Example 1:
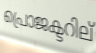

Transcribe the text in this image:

പ്രൊജക്ടറില്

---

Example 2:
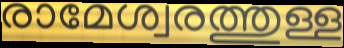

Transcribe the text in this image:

രാമേശ്വരത്തുള്ള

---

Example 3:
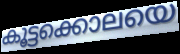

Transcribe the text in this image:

കൂട്ടക്കൊലയെ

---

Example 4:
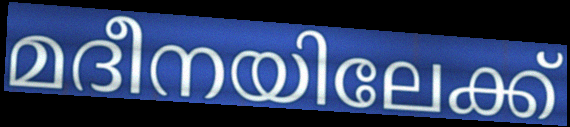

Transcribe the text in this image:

മദീനയിലേക്ക്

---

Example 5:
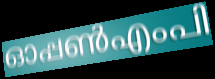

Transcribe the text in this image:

ഓപ്പൺഎംപി